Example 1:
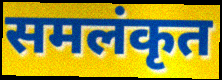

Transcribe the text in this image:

समलंकृत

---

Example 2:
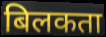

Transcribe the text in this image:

बिलकता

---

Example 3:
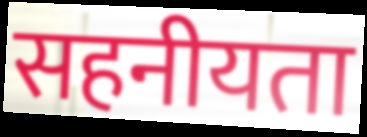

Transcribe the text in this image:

सहनीयता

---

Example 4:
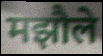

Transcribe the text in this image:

मझौले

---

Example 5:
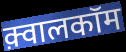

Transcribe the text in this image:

क़्वालकॉम